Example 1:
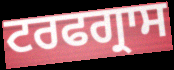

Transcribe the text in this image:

ਟਰਫਗ੍ਰਾਸ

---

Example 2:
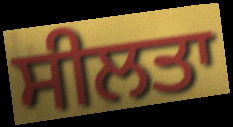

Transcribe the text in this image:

ਸੀਲਤਾ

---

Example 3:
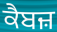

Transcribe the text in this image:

ਕੈਬਜ਼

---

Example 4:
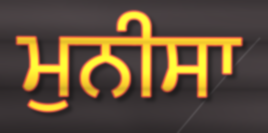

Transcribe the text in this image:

ਮੁਨੀਸਾ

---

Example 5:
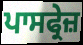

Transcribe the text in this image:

ਪਾਸਫ੍ਰੇਜ਼